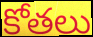
కోతలు